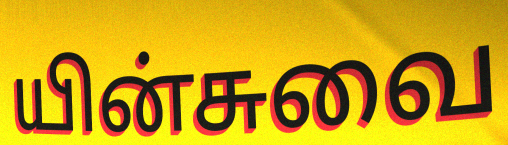
யின்சுவை